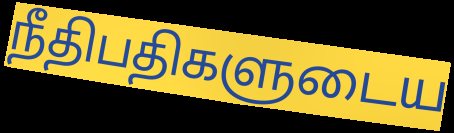
நீதிபதிகளுடைய